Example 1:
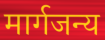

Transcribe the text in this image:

मार्गजन्य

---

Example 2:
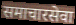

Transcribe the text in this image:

समाचारसेवा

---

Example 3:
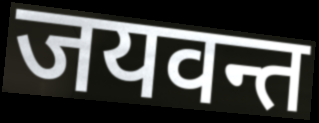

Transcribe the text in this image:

जयवन्त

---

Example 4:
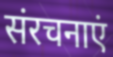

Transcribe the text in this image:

संरचनाएं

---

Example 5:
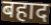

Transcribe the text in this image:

बहाद